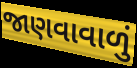
જાણવાવાળું